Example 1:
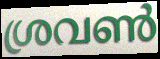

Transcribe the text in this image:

ശ്രവൺ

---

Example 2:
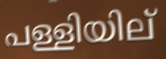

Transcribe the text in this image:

പള്ളിയില്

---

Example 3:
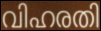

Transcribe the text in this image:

വിഹരതി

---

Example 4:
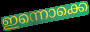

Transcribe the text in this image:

ഇന്നൊക്കെ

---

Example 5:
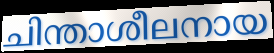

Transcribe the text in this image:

ചിന്താശീലനായ